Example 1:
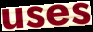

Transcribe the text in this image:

uses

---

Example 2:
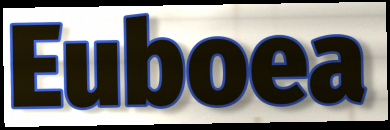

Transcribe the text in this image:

Euboea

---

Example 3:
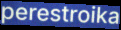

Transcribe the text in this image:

perestroika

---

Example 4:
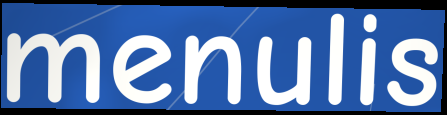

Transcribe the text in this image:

menulis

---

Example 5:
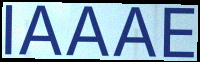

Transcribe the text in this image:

IAAAE